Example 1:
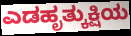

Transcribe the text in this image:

ಎಡಹೃತ್ಕುಕ್ಷಿಯ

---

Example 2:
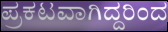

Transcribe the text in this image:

ಪ್ರಕಟವಾಗಿದ್ದರಿಂದ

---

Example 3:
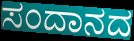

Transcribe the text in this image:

ಸಂದಾನದ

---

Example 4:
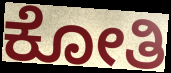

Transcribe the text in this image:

ಕೋತಿ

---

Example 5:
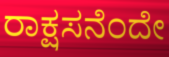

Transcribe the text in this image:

ರಾಕ್ಷಸನೆಂದೇ